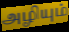
அழியும்